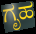
ಗೃಹ